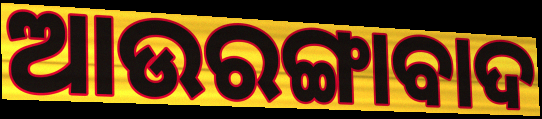
ଆଉରଙ୍ଗାବାଦ